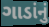
ગાડાંનું